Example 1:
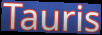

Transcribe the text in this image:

Tauris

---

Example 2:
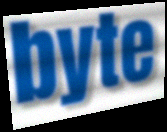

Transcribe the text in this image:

byte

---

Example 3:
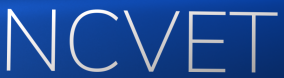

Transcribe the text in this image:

NCVET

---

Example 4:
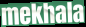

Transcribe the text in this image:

mekhala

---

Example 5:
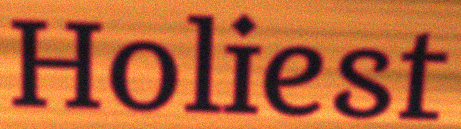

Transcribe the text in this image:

Holiest